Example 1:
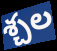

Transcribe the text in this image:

శ్చల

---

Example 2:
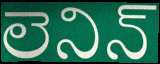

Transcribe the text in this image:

లెనిన్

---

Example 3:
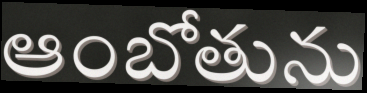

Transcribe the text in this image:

ఆంబోతును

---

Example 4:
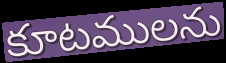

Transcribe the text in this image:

కూటములను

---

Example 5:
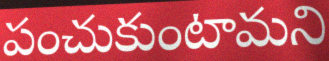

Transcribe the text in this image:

పంచుకుంటామని